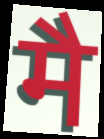
मै